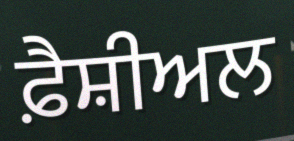
ਫ਼ੈਸ਼ੀਅਲ